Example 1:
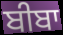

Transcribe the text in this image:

ਬੀਬਾ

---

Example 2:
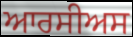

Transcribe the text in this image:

ਆਰਸੀਅਸ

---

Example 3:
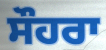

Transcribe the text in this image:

ਸੌਹਰਾ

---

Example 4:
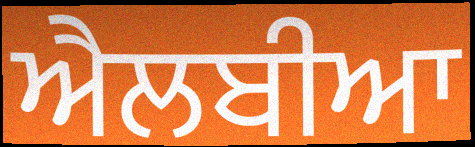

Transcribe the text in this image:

ਐਲਬੀਆ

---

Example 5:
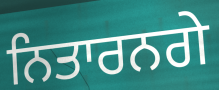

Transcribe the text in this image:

ਨਿਤਾਰਨਗੇ